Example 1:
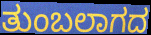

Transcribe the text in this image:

ತುಂಬಲಾಗದ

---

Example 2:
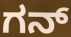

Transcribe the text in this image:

ಗನ್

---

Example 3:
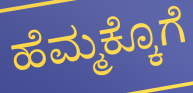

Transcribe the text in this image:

ಹೆಮ್ಮಕ್ಕೊಗೆ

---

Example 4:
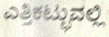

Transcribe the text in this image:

ಎತ್ತಿಕಟ್ಟುವಲ್ಲಿ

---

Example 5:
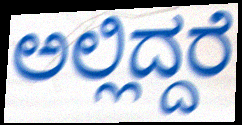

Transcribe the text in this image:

ಅಲ್ಲಿದ್ದರೆ